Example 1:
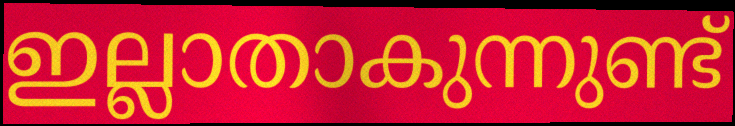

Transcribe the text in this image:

ഇല്ലാതാകുന്നുണ്ട്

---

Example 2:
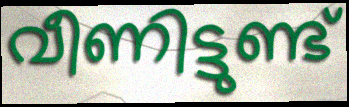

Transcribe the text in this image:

വീണിട്ടുണ്ട്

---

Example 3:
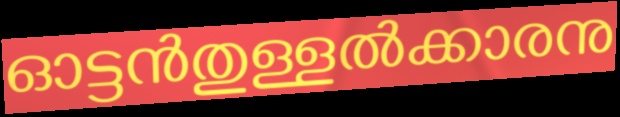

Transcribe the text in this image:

ഓട്ടൻതുള്ളൽക്കാരനു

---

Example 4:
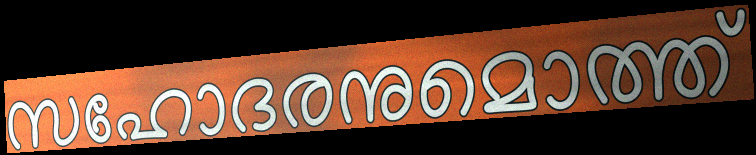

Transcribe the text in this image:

സഹോദരനുമൊത്ത്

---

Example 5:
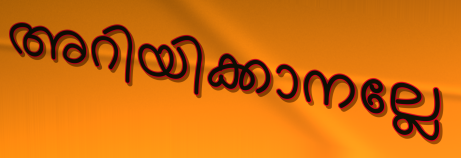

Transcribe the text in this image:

അറിയിക്കാനല്ലേ